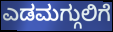
ಎಡಮಗ್ಗುಲಿಗೆ